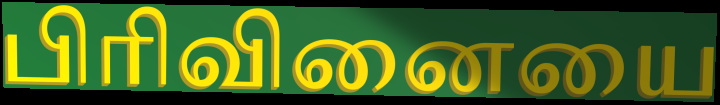
பிரிவினையை